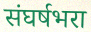
संघर्षभरा